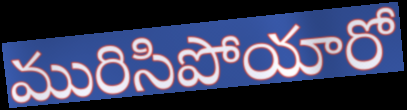
మురిసిపోయారో